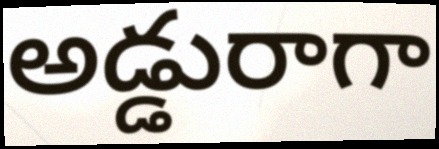
అడ్డురాగా